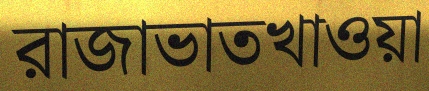
রাজাভাতখাওয়া